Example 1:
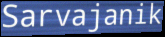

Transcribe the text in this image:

Sarvajanik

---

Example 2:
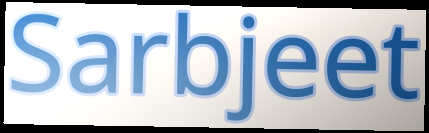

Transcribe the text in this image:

Sarbjeet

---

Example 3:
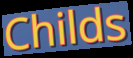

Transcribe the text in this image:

Childs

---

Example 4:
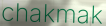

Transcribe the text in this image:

chakmak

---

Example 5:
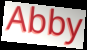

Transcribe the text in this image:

Abby